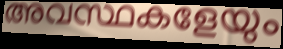
അവസ്ഥകളേയും